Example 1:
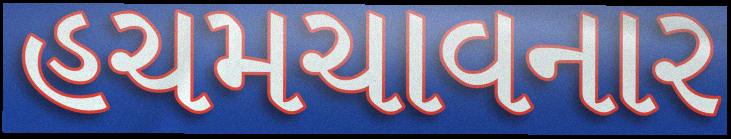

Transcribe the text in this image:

હચમચાવનાર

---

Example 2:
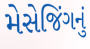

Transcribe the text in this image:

મેસેજિંગનું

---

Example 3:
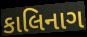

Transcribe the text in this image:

કાલિનાગ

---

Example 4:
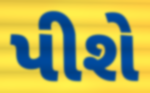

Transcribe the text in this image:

પીશે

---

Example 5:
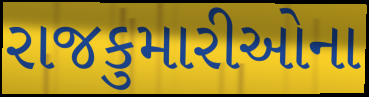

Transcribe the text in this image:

રાજકુમારીઓના